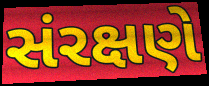
સંરક્ષણે